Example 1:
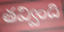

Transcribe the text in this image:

తవ్వింది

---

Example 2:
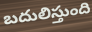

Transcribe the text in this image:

బదులిస్తుంది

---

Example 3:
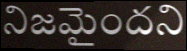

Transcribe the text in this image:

నిజమైందని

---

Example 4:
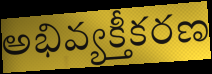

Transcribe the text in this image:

అభివ్యక్తీకరణ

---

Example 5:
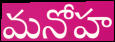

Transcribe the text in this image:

మనోహ